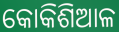
କୋକିଶିଆଳ